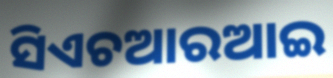
ସିଏଚଆରଆଇ